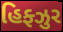
હિફ્ઝુર